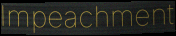
Impeachment